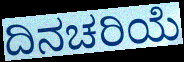
ದಿನಚರಿಯೆ